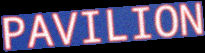
PAVILION